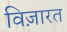
विज़ारत